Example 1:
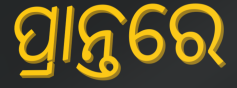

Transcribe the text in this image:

ପ୍ରାନ୍ତରେ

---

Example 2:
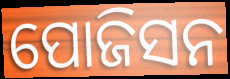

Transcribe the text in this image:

ପୋଜିସନ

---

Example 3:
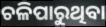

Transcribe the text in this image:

ଚଳିପାରୁଥିବା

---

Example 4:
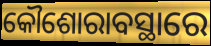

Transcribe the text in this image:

କୌଶୋରାବସ୍ଥାରେ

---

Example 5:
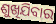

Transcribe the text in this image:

ଶୁଖିଯିବାର